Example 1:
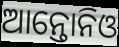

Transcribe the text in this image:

ଆନ୍ତୋନିଓ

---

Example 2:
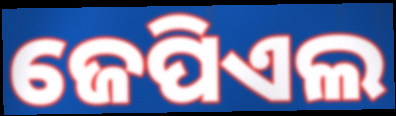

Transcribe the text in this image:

ଜେପିଏଲ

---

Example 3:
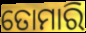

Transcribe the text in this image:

ତୋମାରି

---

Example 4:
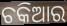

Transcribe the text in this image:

ଚକିଆର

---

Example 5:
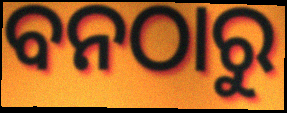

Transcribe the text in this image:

ବନଠାରୁ